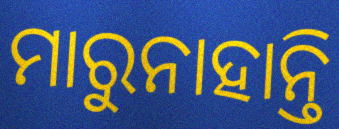
ମାରୁନାହାନ୍ତି